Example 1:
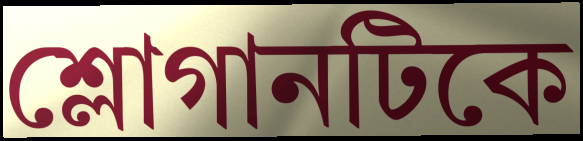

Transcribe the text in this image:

শ্লোগানটিকে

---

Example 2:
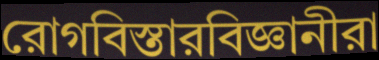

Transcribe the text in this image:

রোগবিস্তারবিজ্ঞানীরা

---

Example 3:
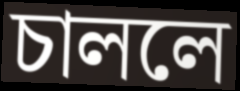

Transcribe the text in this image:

চাললে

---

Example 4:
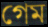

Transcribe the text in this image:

গেম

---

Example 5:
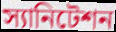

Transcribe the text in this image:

স্যানিটেশন